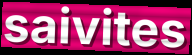
saivites